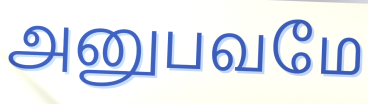
அனுபவமே